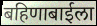
बहिणाबाईला